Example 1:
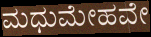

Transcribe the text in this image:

ಮಧುಮೇಹವೇ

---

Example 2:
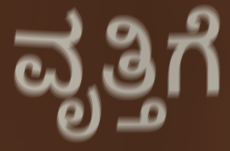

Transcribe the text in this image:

ವೃತ್ತಿಗೆ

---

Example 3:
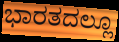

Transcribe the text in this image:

ಭಾರತದಲ್ಲೂ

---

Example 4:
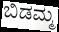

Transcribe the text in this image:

ಬಿಡಮ್ಮ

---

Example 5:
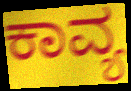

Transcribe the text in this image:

ಕಾವ್ಯ